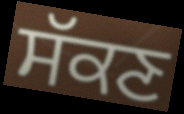
ਸੱਕਣ